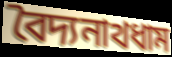
বৈদ্যনাথধাম